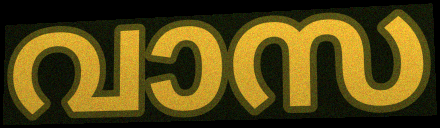
വാസ